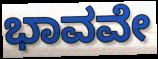
ಭಾವವೇ